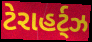
ટેરાહર્ટ્ઝ